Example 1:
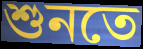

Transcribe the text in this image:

শুনতে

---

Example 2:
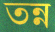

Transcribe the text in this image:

তন্ন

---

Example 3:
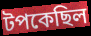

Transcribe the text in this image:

টপকেছিল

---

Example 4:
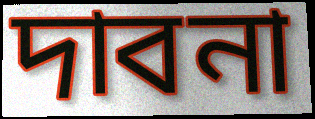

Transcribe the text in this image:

দাবনা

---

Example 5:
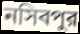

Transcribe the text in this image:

নসিবপুর